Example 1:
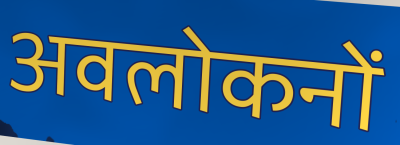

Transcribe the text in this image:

अवलोकनों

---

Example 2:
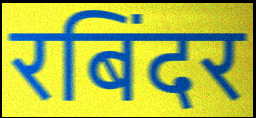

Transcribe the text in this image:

रबिंदर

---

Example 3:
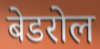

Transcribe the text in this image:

बेडरोल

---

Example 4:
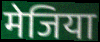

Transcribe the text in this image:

मेजिया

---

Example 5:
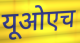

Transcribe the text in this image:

यूओएच